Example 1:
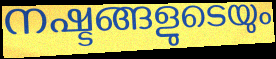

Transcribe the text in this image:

നഷ്ടങ്ങളുടെയും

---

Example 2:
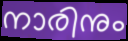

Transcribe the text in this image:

നാരിനും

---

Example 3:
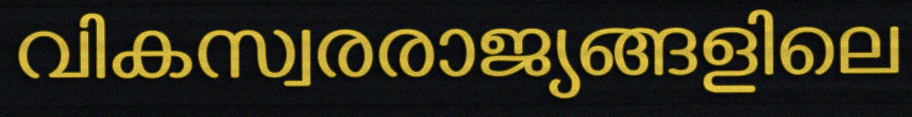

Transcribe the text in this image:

വികസ്വരരാജ്യങ്ങളിലെ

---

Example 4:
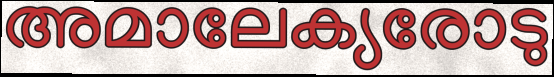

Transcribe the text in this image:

അമാലേക്യരോടു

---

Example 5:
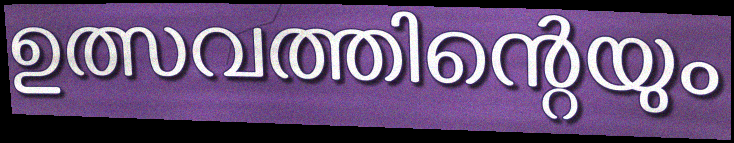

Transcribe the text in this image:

ഉത്സവത്തിന്റെയും